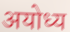
अयोध्य